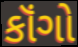
કૉંગો